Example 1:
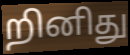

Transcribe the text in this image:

றினிது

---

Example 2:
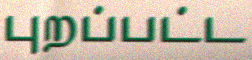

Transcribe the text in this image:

புறப்பட்ட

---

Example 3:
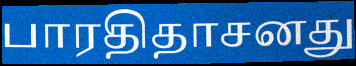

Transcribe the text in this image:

பாரதிதாசனது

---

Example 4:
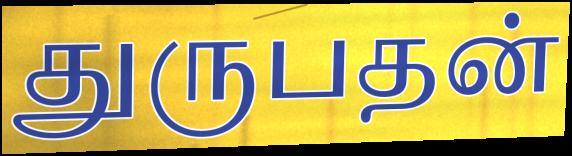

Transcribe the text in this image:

துருபதன்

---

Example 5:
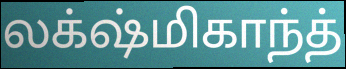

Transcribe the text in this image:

லக்‌ஷ்மிகாந்த்